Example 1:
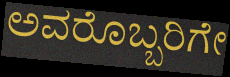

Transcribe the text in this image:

ಅವರೊಬ್ಬರಿಗೇ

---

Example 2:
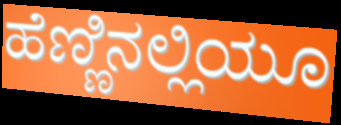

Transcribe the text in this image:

ಹೆಣ್ಣಿನಲ್ಲಿಯೂ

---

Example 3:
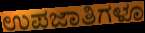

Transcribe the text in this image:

ಉಪಜಾತಿಗಳೂ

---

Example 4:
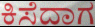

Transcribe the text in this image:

ಕಿಸೆದಾಗ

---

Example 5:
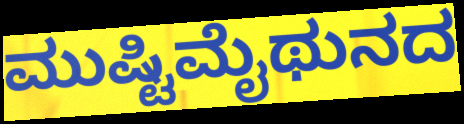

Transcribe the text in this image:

ಮುಷ್ಟಿಮೈಥುನದ